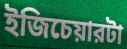
ইজিচেয়ারটা